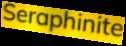
Seraphinite